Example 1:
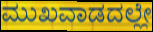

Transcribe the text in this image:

ಮುಖವಾಡದಲ್ಲೇ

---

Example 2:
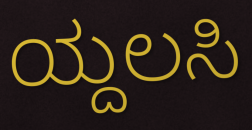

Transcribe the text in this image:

ಯ್ದಲಸಿ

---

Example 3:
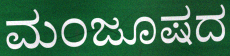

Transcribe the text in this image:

ಮಂಜೂಷದ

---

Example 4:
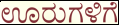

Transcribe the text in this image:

ಊರುಗಳಿಗೆ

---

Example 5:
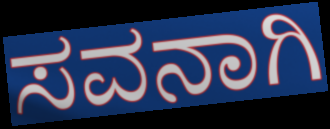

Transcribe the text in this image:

ಸವನಾಗಿ